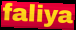
faliya